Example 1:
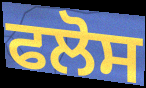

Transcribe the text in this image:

ਫਲੋਸ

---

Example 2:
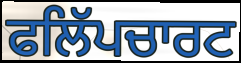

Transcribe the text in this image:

ਫਲਿੱਪਚਾਰਟ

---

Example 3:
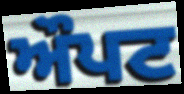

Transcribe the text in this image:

ਔਪਟ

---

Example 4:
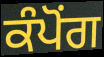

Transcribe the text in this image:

ਕੰਪੋਂਗ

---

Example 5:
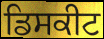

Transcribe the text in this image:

ਡਿਸਕੀਟ